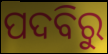
ପଦବିରୁ